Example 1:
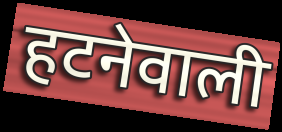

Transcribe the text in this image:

हटनेवाली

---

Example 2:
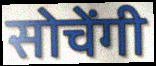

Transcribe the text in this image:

सोचेंगी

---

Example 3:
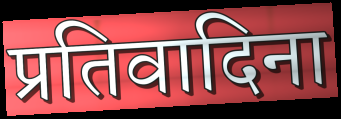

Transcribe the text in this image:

प्रतिवादिना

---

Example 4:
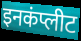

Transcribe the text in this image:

इनकंप्लीट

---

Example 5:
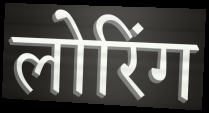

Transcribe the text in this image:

लोरिंग